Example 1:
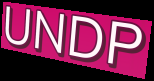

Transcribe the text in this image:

UNDP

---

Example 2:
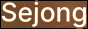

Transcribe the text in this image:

Sejong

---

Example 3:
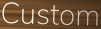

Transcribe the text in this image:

Custom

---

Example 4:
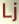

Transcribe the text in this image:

Lj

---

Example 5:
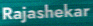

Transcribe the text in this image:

Rajashekar